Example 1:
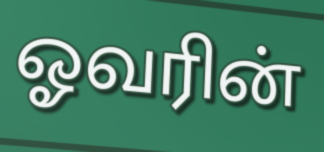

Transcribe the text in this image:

ஓவரின்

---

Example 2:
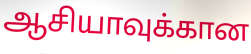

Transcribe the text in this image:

ஆசியாவுக்கான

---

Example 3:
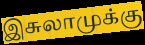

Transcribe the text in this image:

இசுலாமுக்கு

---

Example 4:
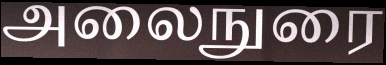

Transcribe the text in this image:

அலைநுரை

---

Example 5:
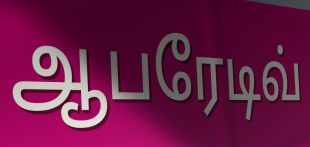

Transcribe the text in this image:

ஆபரேடிவ்